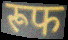
रूफ